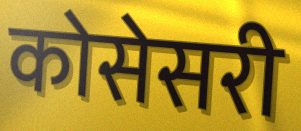
कोसेसरी